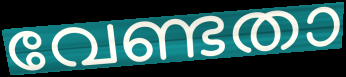
വേണ്ടതാ